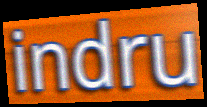
indru